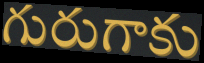
గురుగాకు